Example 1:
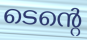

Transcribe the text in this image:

ടെന്റെ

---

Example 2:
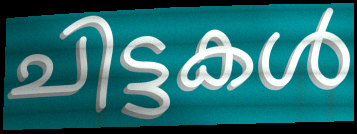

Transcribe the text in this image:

ചിട്ടകൾ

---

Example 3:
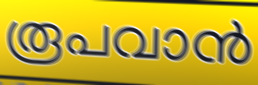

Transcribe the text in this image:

രൂപവാൻ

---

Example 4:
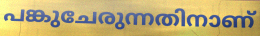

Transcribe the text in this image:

പങ്കുചേരുന്നതിനാണ്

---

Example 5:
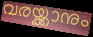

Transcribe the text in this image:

വരയ്ക്കാനും